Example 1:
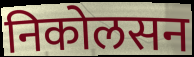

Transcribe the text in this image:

निकोलसन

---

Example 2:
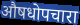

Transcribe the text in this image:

औषधोपचारा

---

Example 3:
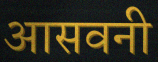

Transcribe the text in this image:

आसवनी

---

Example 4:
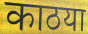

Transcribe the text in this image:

काठया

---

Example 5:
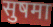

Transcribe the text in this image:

सुषमा